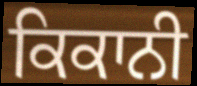
ਕਿਕਾਨੀ